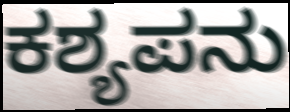
ಕಶ್ಯಪನು